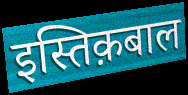
इस्तिक़बाल